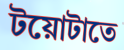
টয়োটাতে